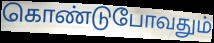
கொண்டுபோவதும்